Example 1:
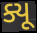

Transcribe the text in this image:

ક્યૂ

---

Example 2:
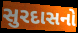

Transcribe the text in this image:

સુરદાસનો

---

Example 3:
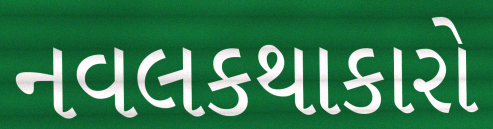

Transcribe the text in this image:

નવલકથાકારો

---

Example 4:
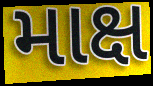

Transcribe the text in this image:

માક્ષ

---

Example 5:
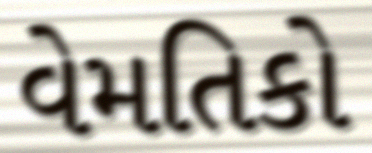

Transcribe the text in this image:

વેમતિકો